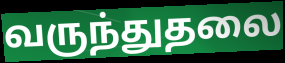
வருந்துதலை